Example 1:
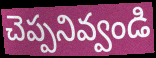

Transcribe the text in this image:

చెప్పనివ్వండి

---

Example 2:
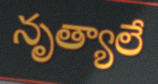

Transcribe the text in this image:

నృత్యాలే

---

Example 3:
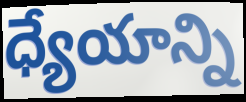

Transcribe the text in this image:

ధ్యేయాన్ని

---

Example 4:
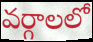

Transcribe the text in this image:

వర్గాలలో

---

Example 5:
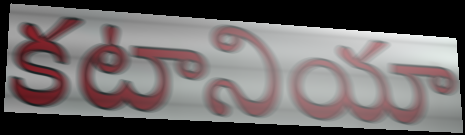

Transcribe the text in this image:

కటానియా